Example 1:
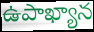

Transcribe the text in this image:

ఉపాఖ్యాన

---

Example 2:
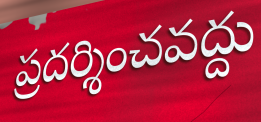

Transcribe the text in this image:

ప్రదర్శించవద్దు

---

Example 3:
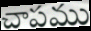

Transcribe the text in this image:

చాపము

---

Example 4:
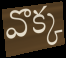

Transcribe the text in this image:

వొక్క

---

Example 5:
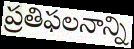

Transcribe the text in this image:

ప్రతిఫలనాన్ని